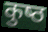
कुष्‍ठ